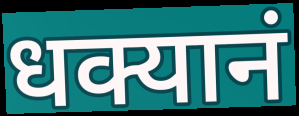
धक्यानं